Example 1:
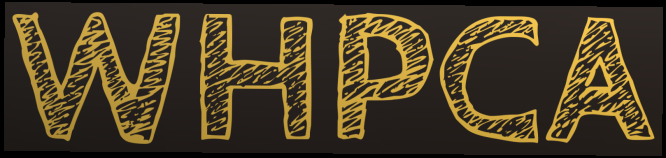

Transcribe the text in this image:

WHPCA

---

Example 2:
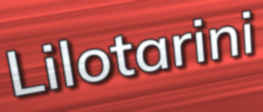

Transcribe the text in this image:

Lilotarini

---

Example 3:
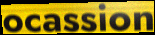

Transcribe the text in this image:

ocassion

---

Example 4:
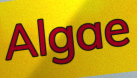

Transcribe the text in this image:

Algae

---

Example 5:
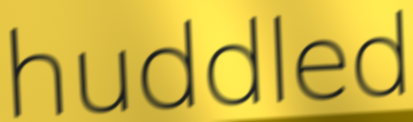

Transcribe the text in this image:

huddled